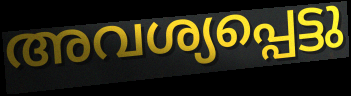
അവശ്യപ്പെട്ടു